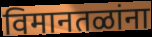
विमानतळांना